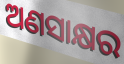
ଅଣସାକ୍ଷର